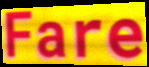
Fare